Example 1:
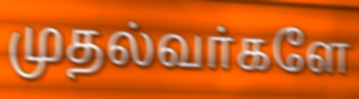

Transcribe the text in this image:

முதல்வர்களே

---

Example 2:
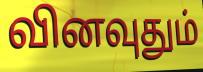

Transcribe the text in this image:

வினவுதும்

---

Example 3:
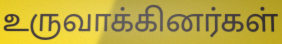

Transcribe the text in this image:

உருவாக்கினர்கள்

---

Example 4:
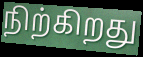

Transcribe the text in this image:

நிற்கிறது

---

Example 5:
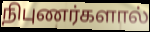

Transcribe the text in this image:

நிபுணர்களால்